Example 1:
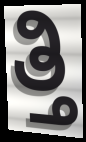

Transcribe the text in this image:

ತ್ತಿ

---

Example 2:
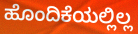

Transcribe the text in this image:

ಹೊಂದಿಕೆಯಲ್ಲಿಲ್ಲ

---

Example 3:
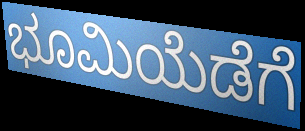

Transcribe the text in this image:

ಭೂಮಿಯೆಡೆಗೆ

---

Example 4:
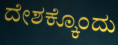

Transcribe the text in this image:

ದೇಶಕ್ಕೊಂದು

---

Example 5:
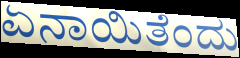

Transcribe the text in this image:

ಏನಾಯಿತೆಂದು